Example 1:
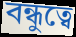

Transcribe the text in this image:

বন্ধুত্বে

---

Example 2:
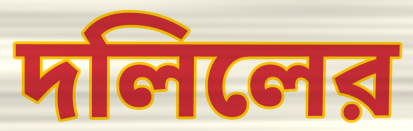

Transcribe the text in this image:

দলিলের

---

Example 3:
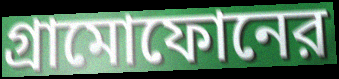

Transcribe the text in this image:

গ্রামোফোনের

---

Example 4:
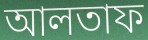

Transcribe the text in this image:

আলতাফ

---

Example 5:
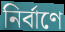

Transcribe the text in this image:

নির্বাণে